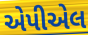
એપીએલ